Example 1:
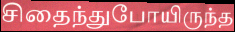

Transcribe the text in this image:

சிதைந்துபோயிருந்த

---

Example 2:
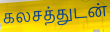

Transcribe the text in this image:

கலசத்துடன்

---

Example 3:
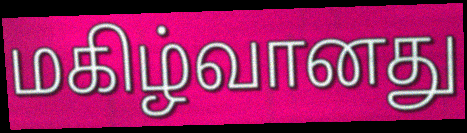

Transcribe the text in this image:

மகிழ்வானது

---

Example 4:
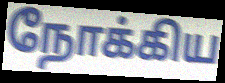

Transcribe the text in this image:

நோக்கிய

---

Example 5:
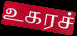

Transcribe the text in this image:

உகரச்